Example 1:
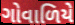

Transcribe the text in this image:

ગોવાળિયે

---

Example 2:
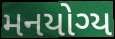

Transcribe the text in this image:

મનયોગ્ય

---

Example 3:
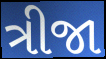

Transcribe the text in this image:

ત્રીજા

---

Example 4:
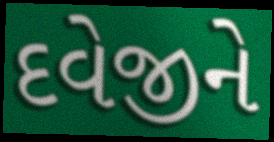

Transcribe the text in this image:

દવેજીને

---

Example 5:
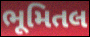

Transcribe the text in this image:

ભૂમિતલ